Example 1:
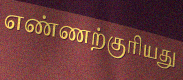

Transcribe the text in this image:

எண்ணற்குரியது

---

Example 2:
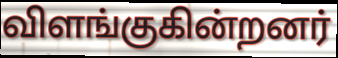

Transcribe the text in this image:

விளங்குகின்றனர்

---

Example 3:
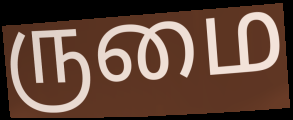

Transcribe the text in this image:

ருமை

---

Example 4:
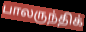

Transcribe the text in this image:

பாலருந்திக்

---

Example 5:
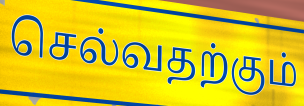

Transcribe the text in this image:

செல்வதற்கும்